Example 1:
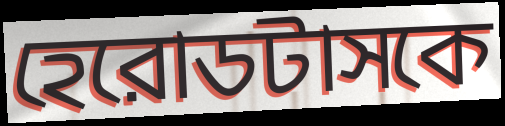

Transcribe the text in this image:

হেরোডটাসকে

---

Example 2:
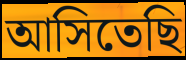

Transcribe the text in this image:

আসিতেছি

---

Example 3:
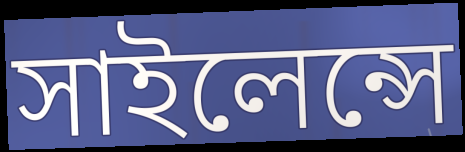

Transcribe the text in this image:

সাইলেন্সে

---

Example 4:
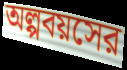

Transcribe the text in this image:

অল্পবয়সের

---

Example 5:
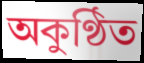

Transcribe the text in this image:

অকুণ্ঠিত